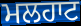
ਮਲਹਾਟ